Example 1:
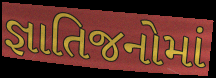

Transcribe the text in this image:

જ્ઞાતિજનોમાં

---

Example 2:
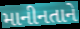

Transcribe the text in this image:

માનીનતાને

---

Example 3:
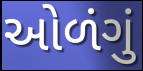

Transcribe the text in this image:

ઓળંગું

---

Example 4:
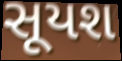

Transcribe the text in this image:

સૂયશ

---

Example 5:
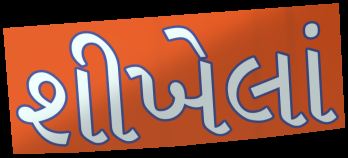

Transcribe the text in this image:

શીખેલાં